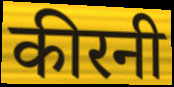
कीरनी